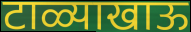
टाळ्याखाऊ